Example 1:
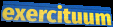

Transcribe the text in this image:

exercituum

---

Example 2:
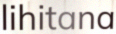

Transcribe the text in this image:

lihitana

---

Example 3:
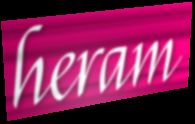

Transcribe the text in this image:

heram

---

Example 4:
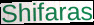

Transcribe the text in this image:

Shifaras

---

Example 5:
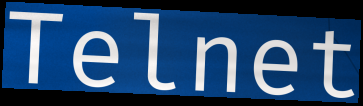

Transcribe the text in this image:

Telnet